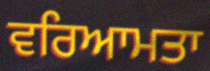
ਵਰਿਆਮਤਾ